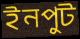
ইনপুট